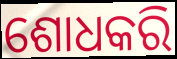
ଶୋଧକରି